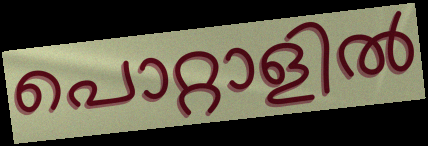
പൊറ്റാളിൽ